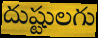
దుష్టులగు